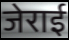
जेराई